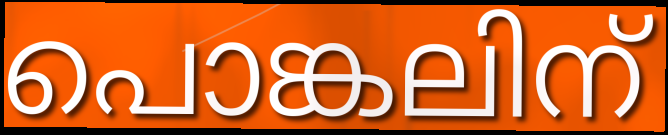
പൊങ്കലിന്